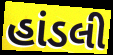
હાંડલી